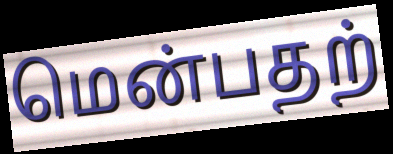
மென்பதற்